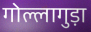
गोल्लागुड़ा